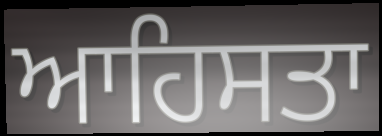
ਆਹਿਸਤਾ